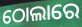
ଠୋଲାରେ